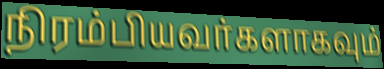
நிரம்பியவர்களாகவும்